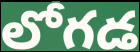
లోగడ